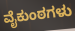
ವೈಕುಂಠಗಳು